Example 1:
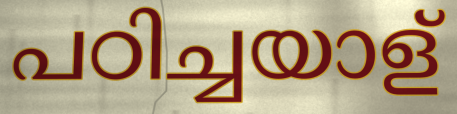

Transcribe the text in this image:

പഠിച്ചയാള്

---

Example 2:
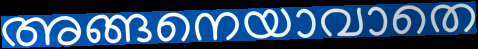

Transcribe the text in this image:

അങ്ങനെയാവാതെ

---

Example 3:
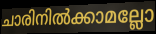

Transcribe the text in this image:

ചാരിനിൽക്കാമല്ലോ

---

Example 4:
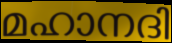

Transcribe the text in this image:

മഹാനദി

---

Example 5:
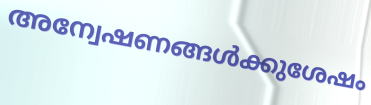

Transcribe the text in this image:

അന്വേഷണങ്ങൾക്കുശേഷം